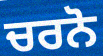
ਚਰਨੋ